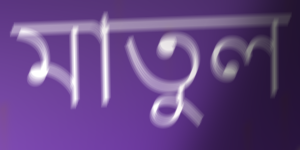
মাতুল